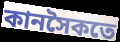
কানসৈকতে